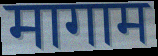
मागाम